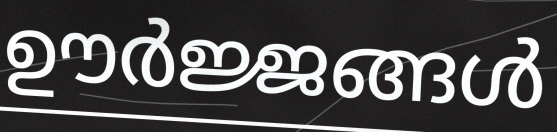
ഊർജ്ജങ്ങൾ